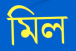
মিল